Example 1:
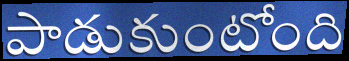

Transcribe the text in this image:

పాడుకుంటోంది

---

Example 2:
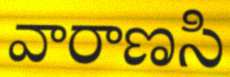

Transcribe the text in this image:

వారాణసి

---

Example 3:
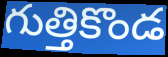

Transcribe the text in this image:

గుత్తికొండ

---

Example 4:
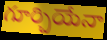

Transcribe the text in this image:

గూర్చియేనా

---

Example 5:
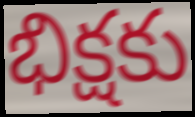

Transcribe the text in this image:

భిక్షకు